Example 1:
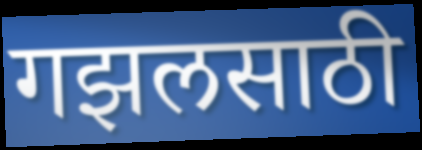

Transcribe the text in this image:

गझलसाठी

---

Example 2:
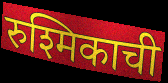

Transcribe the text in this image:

रुश्मिकाची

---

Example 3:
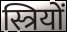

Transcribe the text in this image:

स्त्रियों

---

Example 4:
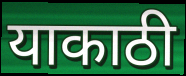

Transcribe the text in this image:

याकाठी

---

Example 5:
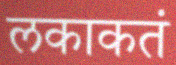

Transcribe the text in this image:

लकाकतं